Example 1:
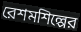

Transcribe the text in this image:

রেশমশিল্পের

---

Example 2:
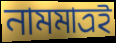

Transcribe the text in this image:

নামমাত্রই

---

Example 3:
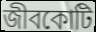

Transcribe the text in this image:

জীবকোটি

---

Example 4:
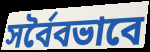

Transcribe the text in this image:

সর্বৈবভাবে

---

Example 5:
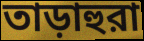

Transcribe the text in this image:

তাড়াহুরা